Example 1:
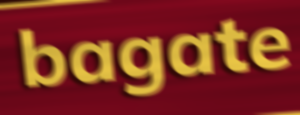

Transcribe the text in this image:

bagate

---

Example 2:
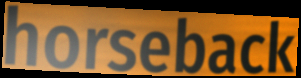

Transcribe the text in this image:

horseback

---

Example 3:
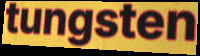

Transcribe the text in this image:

tungsten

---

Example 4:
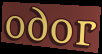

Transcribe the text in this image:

odor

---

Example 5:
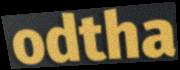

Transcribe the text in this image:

odtha